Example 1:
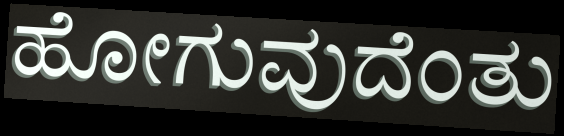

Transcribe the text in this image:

ಹೋಗುವುದೆಂತು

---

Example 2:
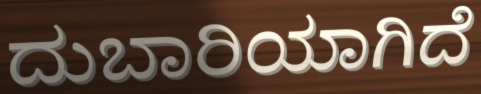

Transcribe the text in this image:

ದುಬಾರಿಯಾಗಿದೆ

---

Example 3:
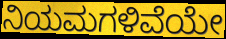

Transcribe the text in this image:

ನಿಯಮಗಳಿವೆಯೇ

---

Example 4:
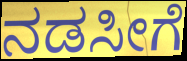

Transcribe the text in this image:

ನಡಸೀಗೆ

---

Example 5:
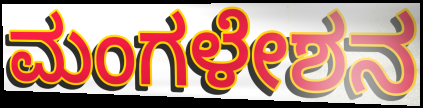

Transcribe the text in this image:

ಮಂಗಳೇಶನ